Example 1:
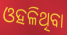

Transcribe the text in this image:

ଓହଳିଥିବା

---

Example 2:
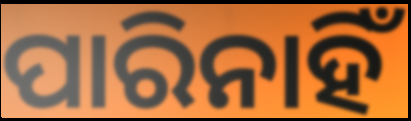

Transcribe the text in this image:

ପାରିନାହିଁ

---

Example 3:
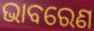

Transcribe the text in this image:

ଭାବରେଣ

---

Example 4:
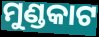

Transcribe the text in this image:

ମୁଣ୍ଡକାଟ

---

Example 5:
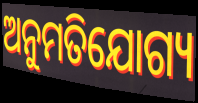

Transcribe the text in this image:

ଅନୁମତିଯୋଗ୍ୟ